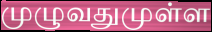
முழுவதுமுள்ள